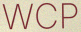
WCP